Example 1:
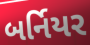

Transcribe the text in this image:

બર્નિયર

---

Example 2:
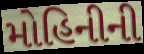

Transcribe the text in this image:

મોહિનીની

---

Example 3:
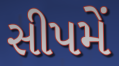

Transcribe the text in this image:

સીપમેં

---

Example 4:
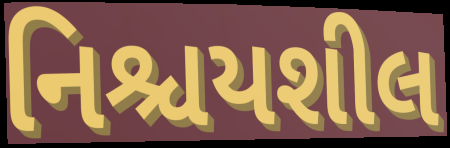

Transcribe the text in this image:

નિશ્ચયશીલ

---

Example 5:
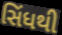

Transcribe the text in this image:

સિંધથી